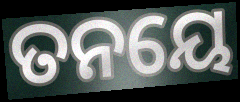
ତନୟେ